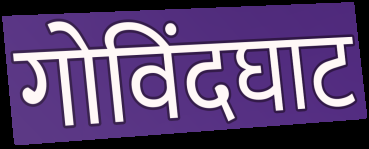
गोविंदघाट